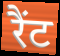
रैंट